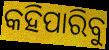
କହିପାରିବୁ